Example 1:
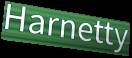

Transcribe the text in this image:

Harnetty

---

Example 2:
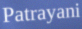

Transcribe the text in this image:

Patrayani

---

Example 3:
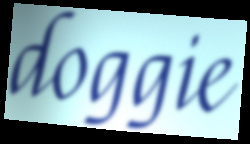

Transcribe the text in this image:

doggie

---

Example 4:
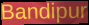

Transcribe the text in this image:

Bandipur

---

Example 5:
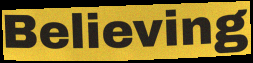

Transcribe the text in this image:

Believing